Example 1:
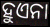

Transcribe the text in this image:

ହୁଏନା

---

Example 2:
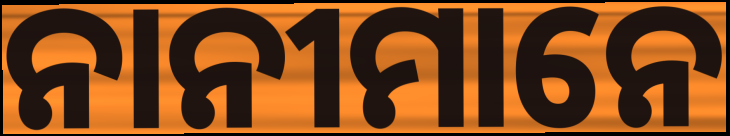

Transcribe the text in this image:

ନାନୀମାନେ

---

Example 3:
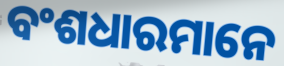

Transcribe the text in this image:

ବଂଶଧାରମାନେ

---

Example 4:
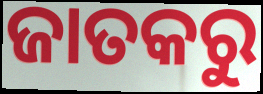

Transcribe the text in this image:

ଜାତକରୁ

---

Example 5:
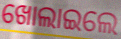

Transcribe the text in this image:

ଖୋଲାଇଲେ